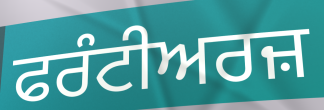
ਫਰੰਟੀਅਰਜ਼